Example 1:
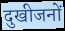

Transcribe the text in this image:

दुखीजनों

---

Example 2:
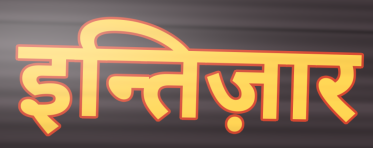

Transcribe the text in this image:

इन्तिज़ार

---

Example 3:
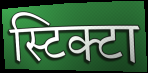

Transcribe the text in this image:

स्टिक्टा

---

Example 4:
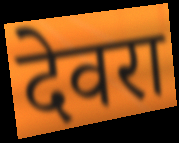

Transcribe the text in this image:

देवरा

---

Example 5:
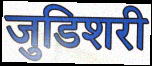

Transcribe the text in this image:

जुडिशरी